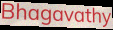
Bhagavathy